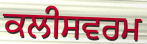
ਕਲੀਸਵਰਮ